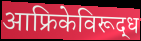
आफ्रिकेविरूद्ध